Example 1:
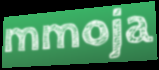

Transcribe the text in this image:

mmoja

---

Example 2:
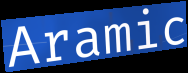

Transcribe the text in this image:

Aramic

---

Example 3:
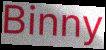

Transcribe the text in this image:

Binny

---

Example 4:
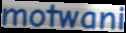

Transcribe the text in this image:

motwani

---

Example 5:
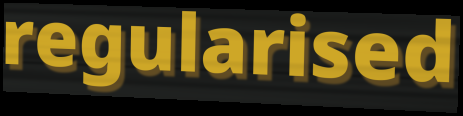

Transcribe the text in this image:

regularised